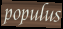
populus